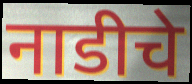
नाडीचे